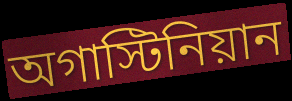
অগাস্টিনিয়ান